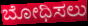
ಬೋಧಿಸಲು